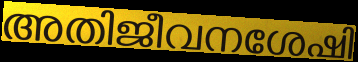
അതിജീവനശേഷി